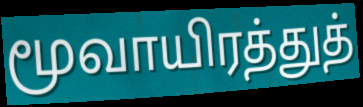
மூவாயிரத்துத்